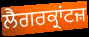
ਲੈਗਰਕ੍ਰਾਂਟਜ਼